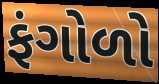
ફંગોળો